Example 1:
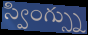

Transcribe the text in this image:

స్వింగ్స్ను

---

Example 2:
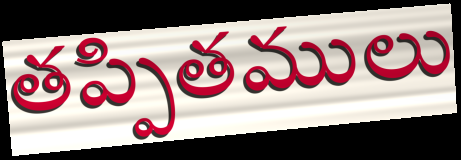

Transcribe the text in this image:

తప్పితములు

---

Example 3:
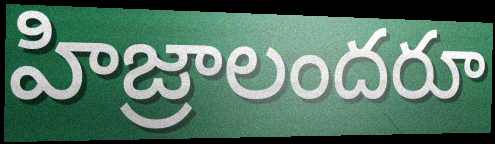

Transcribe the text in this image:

హిజ్రాలందరూ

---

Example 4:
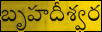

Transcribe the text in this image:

బృహదీశ్వర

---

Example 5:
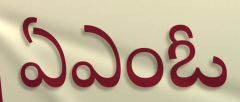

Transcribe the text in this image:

ఏఎంఓ